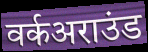
वर्कअराउंड